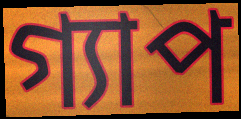
গ্যাপ